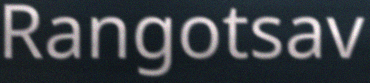
Rangotsav